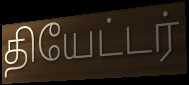
தியேட்டர்